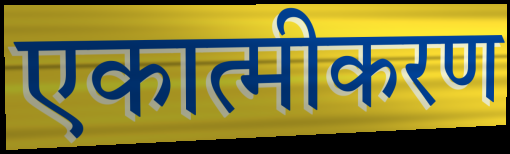
एकात्मीकरण